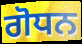
ਗੋਧਨ